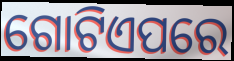
ଗୋଟିଏପରେ